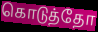
கொடுத்தோ